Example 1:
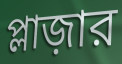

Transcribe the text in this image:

প্লাজ়ার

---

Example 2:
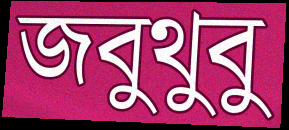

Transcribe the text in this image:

জবুথুবু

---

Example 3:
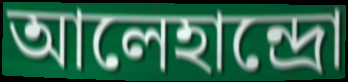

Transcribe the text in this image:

আলেহান্দ্রো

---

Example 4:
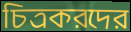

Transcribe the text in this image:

চিত্রকরদের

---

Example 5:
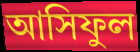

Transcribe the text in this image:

আসিফুল